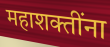
महाशक्तींना